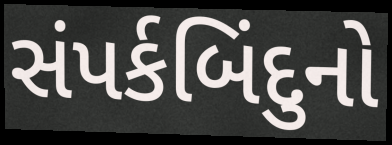
સંપર્કબિંદુનો